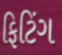
ફિટિંગ